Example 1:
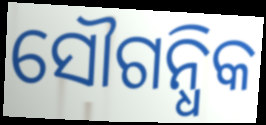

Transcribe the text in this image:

ସୌଗନ୍ଧିକ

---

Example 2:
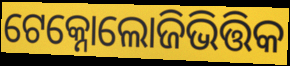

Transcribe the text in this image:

ଟେକ୍ନୋଲୋଜିଭିତ୍ତିକ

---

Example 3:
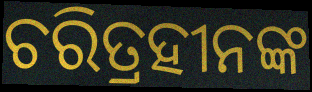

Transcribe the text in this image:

ଚରିତ୍ରହୀନଙ୍କ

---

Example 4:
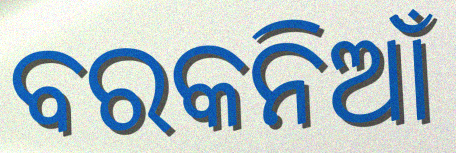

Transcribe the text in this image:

ବରକନିଆଁ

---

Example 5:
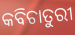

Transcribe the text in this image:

କବିଚାତୁରୀ